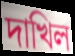
দাখিল